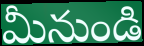
మీనుండి